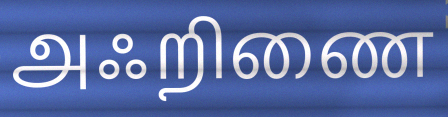
அஃறிணை